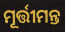
ମୂର୍ତ୍ତୀମନ୍ତ